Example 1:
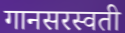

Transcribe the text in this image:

गानसरस्वती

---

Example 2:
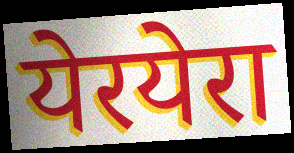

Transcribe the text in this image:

येरयेरा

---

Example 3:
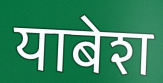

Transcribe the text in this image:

याबेश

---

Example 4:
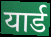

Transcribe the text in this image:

यार्ड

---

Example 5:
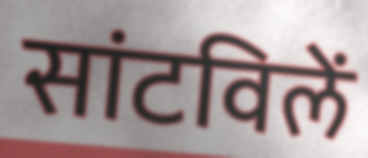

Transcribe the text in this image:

सांटविलें